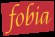
fobia